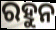
ରହୁନ